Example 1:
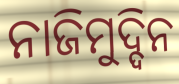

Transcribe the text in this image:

ନାଜିମୁଦ୍ଦିନ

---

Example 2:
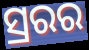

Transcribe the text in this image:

ସ୍ରରର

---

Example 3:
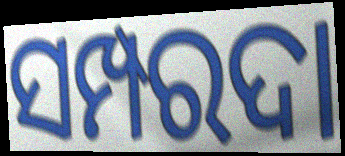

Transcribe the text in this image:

ସମ୍ପରଦା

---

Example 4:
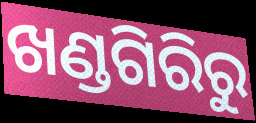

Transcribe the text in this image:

ଖଣ୍ଡଗିରିରୁ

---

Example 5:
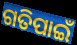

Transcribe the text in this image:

ଗତିପାଇଁ